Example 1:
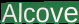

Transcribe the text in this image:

Alcove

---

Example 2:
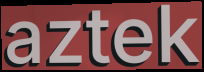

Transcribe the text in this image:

aztek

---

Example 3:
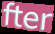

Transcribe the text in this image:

fter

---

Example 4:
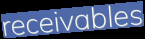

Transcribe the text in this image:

receivables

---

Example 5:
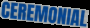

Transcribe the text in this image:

CEREMONIAL